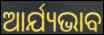
ଆର୍ଯ୍ୟଭାବ